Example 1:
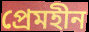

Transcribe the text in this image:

প্রেমহীন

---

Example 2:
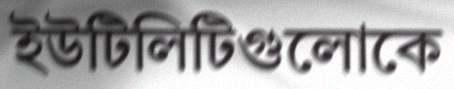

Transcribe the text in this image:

ইউটিলিটিগুলোকে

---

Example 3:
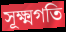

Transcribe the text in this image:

সূক্ষ্মগতি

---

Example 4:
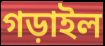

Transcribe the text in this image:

গড়াইল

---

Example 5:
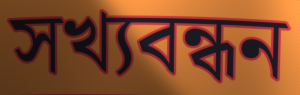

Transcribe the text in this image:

সখ্যবন্ধন